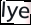
Iye